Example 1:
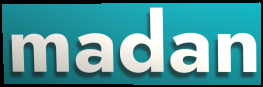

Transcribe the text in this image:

madan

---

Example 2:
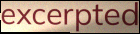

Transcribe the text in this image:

excerpted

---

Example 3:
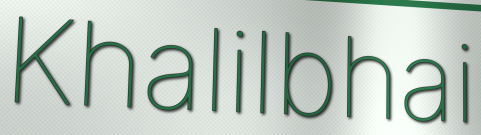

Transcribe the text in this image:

Khalilbhai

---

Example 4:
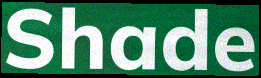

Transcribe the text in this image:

Shade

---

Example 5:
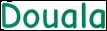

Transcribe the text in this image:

Douala